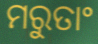
ମରୁତାଂ